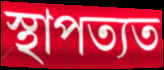
স্থাপত্যত